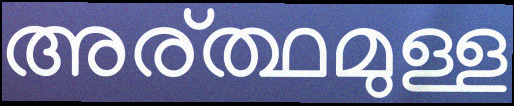
അര്ത്ഥമുള്ള